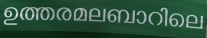
ഉത്തരമലബാറിലെ